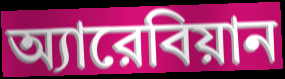
অ্যারেবিয়ান